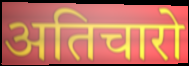
अतिचारो